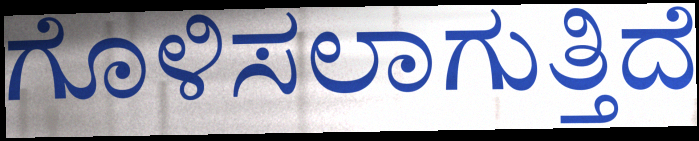
ಗೊಳಿಸಲಾಗುತ್ತಿದೆ